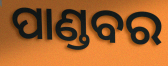
ପାଣ୍ଡବର